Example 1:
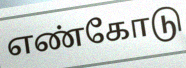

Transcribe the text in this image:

எண்கோடு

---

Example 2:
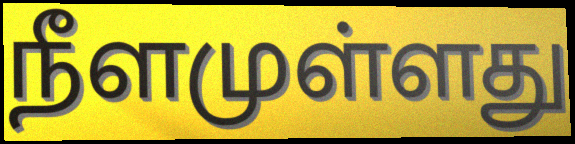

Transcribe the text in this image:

நீளமுள்ளது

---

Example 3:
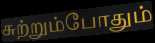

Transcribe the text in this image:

சுற்றும்போதும்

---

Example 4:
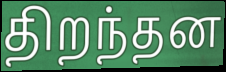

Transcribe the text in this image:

திறந்தன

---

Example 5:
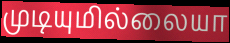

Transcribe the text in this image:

முடியுமில்லையா